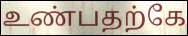
உண்பதற்கே